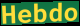
Hebdo